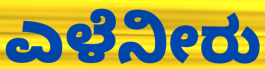
ಎಳೆನೀರು